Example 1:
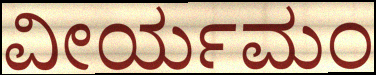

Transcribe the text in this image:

ವೀರ್ಯಮಂ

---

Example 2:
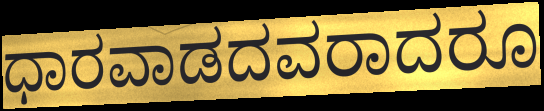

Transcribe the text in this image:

ಧಾರವಾಡದವರಾದರೂ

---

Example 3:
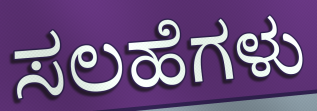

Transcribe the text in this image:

ಸಲಹೆಗಳು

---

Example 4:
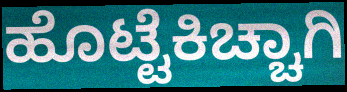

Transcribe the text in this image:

ಹೊಟ್ಟೆಕಿಚ್ಚಾಗಿ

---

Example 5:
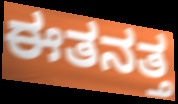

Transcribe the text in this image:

ಈತನತ್ತ